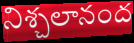
నిశ్చలానంద